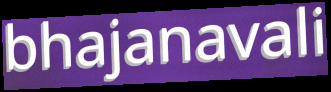
bhajanavali